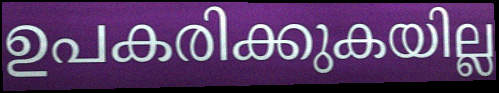
ഉപകരിക്കുകയില്ല